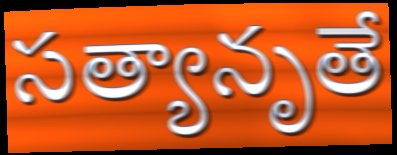
సత్యానృతే